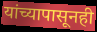
यांच्यापासूनही